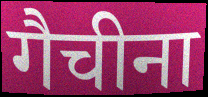
गैचीना